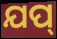
ଯପ୍